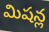
మిషన్ల